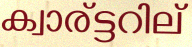
ക്വാര്ട്ടറില്